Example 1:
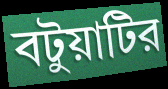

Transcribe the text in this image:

বটুয়াটির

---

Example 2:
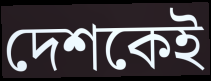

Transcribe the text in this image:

দেশকেই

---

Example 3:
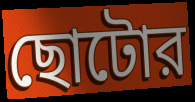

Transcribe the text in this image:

ছোটোর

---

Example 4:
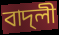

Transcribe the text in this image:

বাদ্‌লী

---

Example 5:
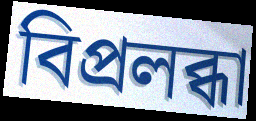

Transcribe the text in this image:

বিপ্রলব্ধা